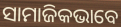
ସାମାଜିକଭାବେ